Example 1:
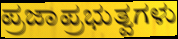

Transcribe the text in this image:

ಪ್ರಜಾಪ್ರಭುತ್ವಗಳು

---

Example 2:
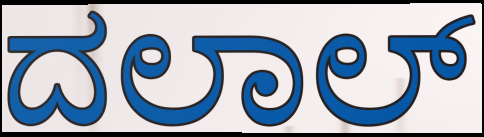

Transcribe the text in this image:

ದಲಾಲ್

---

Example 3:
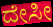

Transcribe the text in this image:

ದೇಸೀ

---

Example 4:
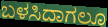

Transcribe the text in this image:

ಬಳಸಿದಾಗಲೂ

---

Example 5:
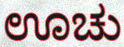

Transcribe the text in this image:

ಊಚು